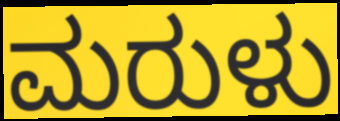
ಮರುಳು